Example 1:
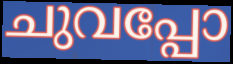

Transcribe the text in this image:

ചുവപ്പോ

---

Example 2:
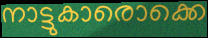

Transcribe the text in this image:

നാട്ടുകാരൊക്കെ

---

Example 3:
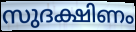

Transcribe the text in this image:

സുദക്ഷിണം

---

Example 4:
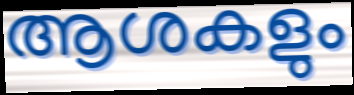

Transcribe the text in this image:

ആശകളും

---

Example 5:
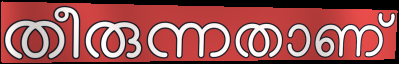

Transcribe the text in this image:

തീരുന്നതാണ്